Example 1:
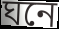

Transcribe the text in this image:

ঘনে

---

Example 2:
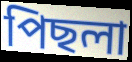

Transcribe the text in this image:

পিছলা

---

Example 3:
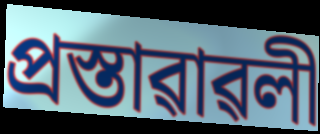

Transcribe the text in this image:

প্ৰস্তাৱাৱলী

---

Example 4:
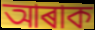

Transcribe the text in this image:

আৰাক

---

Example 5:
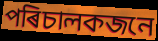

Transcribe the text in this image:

পৰিচালকজনে